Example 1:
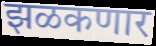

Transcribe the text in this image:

झळकणार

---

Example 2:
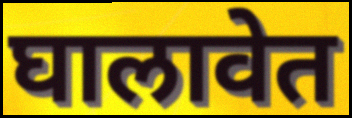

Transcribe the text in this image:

घालावेत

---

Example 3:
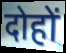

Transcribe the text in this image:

दोहों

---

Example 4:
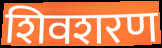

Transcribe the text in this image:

शिवशरण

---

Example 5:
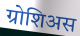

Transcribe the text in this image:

ग्रोशिअस